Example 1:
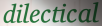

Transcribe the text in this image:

dilectical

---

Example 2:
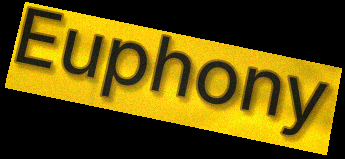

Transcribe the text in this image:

Euphony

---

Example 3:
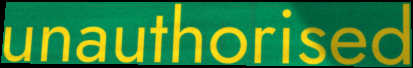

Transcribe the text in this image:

unauthorised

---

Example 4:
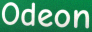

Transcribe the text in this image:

Odeon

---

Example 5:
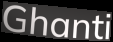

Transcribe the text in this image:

Ghanti